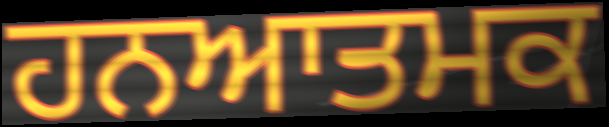
ਹਨਆਤਮਕ